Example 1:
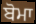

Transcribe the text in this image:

ਬੋਮਾ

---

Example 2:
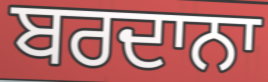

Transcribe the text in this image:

ਬਰਦਾਨਾ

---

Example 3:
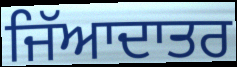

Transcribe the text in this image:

ਜਿੱਆਦਾਤਰ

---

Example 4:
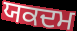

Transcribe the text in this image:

ਯਕਦਮ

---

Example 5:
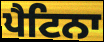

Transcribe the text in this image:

ਪੈਟਿਨਾ